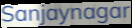
Sanjaynagar